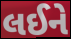
લઈને